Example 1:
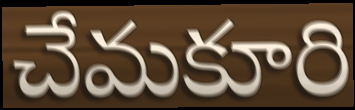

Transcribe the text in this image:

చేమకూరి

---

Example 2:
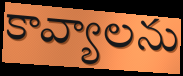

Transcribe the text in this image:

కావ్యాలను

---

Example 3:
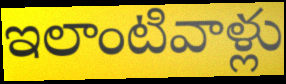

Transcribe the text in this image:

ఇలాంటివాళ్లు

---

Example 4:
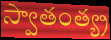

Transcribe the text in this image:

స్వాతంత్య్ర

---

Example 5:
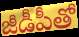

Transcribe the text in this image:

జీడీపీతో